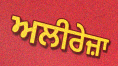
ਅਲੀਰੇਜ਼ਾ